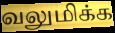
வலுமிக்க